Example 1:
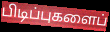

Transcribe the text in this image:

பிடிப்புகளைப்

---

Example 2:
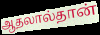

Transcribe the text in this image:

ஆதலால்தான்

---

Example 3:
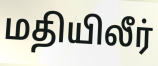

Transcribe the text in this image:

மதியிலீர்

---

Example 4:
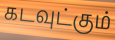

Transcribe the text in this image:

கடவுட்கும்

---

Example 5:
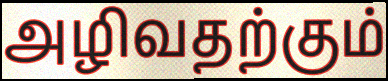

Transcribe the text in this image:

அழிவதற்கும்